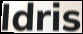
Idris